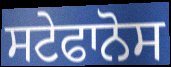
ਸਟੇਫਾਨੋਸ